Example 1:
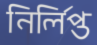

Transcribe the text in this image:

নির্লিপ্ত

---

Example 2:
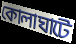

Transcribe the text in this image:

কোলাঘাটে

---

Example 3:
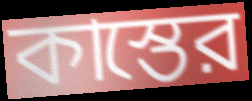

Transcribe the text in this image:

কাস্তের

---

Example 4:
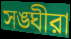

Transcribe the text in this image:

সঙ্ঘীরা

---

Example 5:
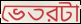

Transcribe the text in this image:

ভেতরটা